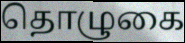
தொழுகை